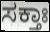
ಸಕ್ತಾಃ